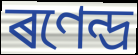
ৰণেন্দ্ৰ